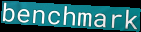
benchmark